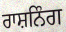
ਰਾਸ਼ਨਿੰਗ